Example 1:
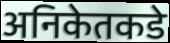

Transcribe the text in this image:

अनिकेतकडे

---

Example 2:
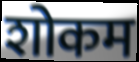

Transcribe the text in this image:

शोकम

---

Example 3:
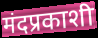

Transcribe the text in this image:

मंदप्रकाशी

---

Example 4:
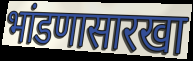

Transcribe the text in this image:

भांडणासारखा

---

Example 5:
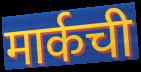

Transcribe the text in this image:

मार्कची